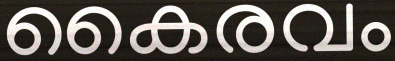
കൈരവം